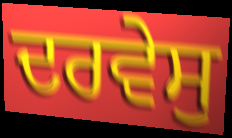
ਦਰਵੇਸੁ